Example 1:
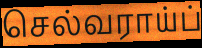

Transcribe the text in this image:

செல்வராய்ப்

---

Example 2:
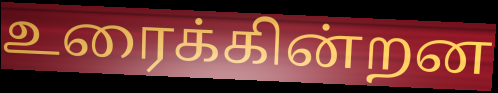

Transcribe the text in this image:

உரைக்கின்றன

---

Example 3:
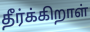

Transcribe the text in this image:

தீர்க்கிறாள்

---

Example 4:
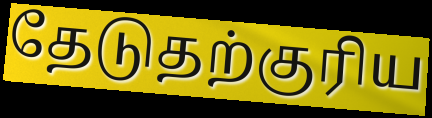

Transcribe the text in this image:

தேடுதற்குரிய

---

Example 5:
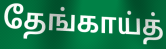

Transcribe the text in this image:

தேங்காய்த்